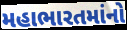
મહાભારતમાંનો